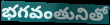
భగవంతునితో